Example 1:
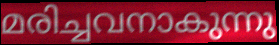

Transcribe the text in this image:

മരിച്ചവനാകുന്നു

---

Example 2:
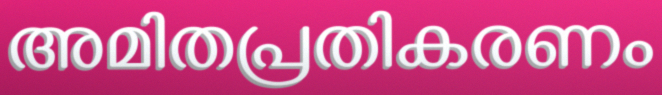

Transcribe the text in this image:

അമിതപ്രതികരണം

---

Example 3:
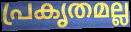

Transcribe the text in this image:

പ്രകൃതമല്ല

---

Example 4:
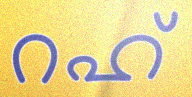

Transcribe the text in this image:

റഹ്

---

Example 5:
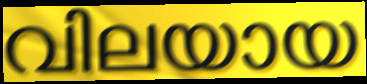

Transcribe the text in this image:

വിലയായ